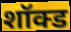
शॉक्ड